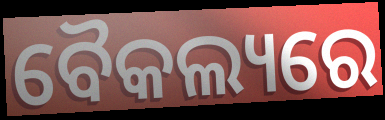
ବୈକଲ୍ୟରେ